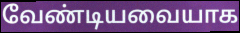
வேண்டியவையாக